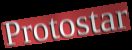
Protostar